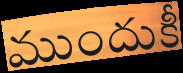
ముందుకీ